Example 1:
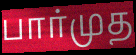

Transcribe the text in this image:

பார்முத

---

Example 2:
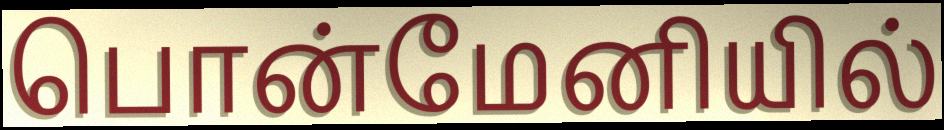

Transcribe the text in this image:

பொன்மேனியில்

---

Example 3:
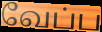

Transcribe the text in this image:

வேப்ப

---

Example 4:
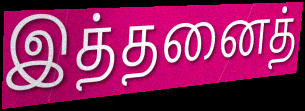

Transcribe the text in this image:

இத்தனைத்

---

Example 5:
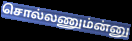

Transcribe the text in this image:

சொல்லணும்ன்னு